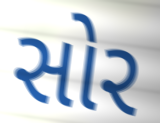
સોર